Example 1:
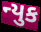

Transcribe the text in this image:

ન્યુક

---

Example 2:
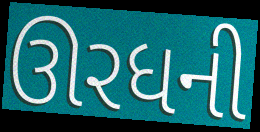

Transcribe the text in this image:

ઊરધની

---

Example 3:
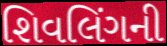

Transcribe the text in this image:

શિવલિંગની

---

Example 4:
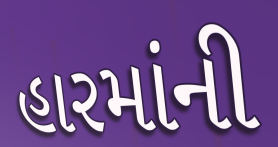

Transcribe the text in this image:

હારમાંની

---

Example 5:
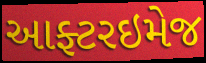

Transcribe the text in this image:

આફ્ટરઇમેજ